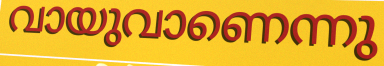
വായുവാണെന്നു